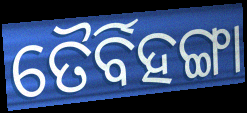
ତୈର୍ବିହଙ୍ଗା